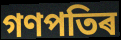
গণপতিৰ